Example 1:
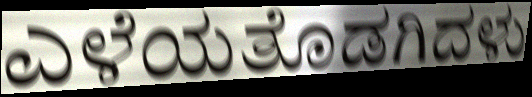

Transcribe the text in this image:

ಎಳೆಯತೊಡಗಿದಳು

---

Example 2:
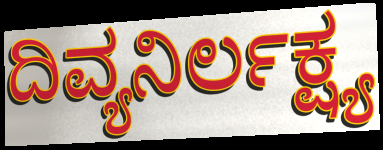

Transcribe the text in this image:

ದಿವ್ಯನಿರ್ಲಕ್ಷ್ಯ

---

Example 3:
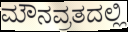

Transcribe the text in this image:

ಮೌನವ್ರತದಲ್ಲಿ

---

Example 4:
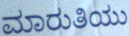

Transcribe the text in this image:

ಮಾರುತಿಯು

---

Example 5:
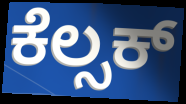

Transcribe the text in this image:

ಕೆಲ್ಸಕ್